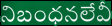
నిబంధనలేవీ